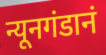
न्यूनगंडानं